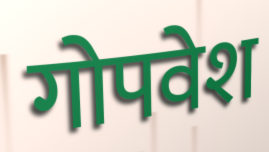
गोपवेश